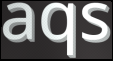
aqs